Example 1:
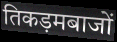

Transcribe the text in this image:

तिकड़मबाजों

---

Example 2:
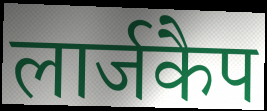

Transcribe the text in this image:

लार्जकैप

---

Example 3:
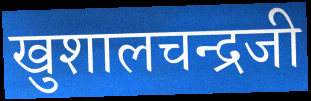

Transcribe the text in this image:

खुशालचन्द्रजी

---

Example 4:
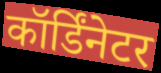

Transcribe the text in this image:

कॉर्डिंनेटर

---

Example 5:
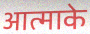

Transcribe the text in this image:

आत्माके